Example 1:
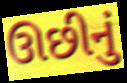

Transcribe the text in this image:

ઊછીનું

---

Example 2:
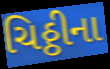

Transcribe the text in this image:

ચિઠ્ઠીના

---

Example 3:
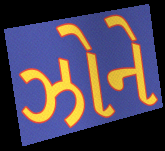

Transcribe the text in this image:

ઝોને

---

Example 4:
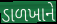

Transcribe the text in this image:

ડાળખાને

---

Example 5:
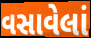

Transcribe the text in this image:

વસાવેલાં